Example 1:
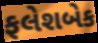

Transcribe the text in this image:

ફલેશબેક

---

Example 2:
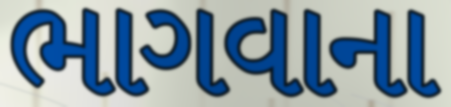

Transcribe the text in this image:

ભાગવાના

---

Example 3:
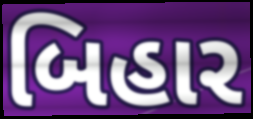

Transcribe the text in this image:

બિહાર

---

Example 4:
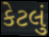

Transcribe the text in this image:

કેટલું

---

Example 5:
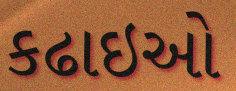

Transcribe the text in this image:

કઢાઇઓ